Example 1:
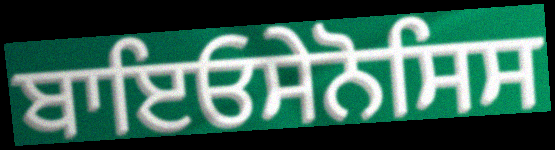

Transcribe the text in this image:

ਬਾਇਓਸੇਨੋਸਿਸ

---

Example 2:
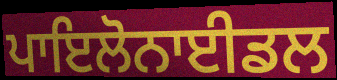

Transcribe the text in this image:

ਪਾਇਲੋਨਾਈਡਲ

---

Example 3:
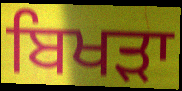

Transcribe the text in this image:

ਬਿਖੜਾ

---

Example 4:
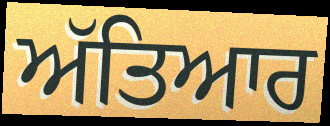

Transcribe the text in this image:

ਅੱਤਿਆਰ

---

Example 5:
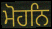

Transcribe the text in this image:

ਮੋਹਨਿ